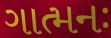
ગાત્મનઃ